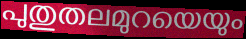
പുതുതലമുറയെയും